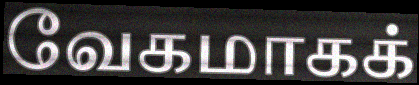
வேகமாகக்